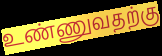
உண்ணுவதற்கு